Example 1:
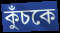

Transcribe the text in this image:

কুঁচকে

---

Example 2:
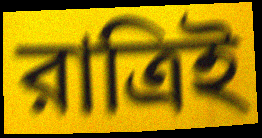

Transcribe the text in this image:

রাত্রিই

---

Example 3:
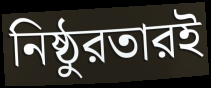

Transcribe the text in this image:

নিষ্ঠুরতারই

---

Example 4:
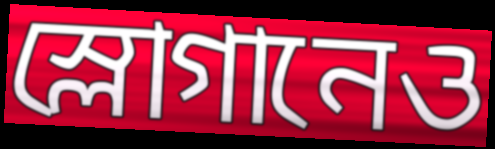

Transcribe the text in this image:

স্লোগানেও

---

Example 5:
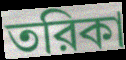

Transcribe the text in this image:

তরিকা